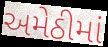
અમેઠીમાં